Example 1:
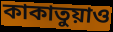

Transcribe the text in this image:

কাকাতুয়াও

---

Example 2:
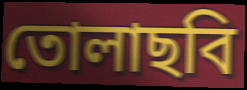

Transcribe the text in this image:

তোলাছবি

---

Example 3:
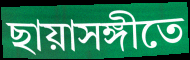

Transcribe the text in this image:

ছায়াসঙ্গীতে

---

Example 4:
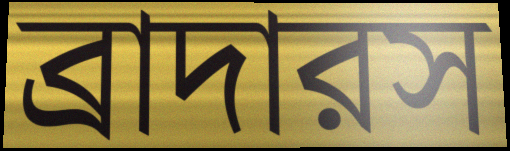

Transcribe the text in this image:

ব্রাদারস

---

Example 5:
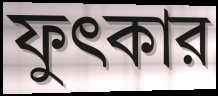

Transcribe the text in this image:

ফুৎকার